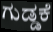
ಗುಡ್ಡಕೆ